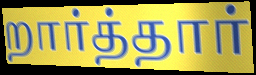
றார்த்தார்